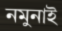
নমুনাই